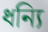
ধন্যি